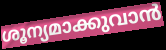
ശൂന്യമാക്കുവാൻ